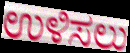
ಉಳಿಸಲು